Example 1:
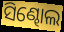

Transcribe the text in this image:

ସିଣ୍ଢୋଲ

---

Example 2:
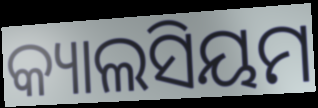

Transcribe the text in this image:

କ୍ୟାଲସିୟମ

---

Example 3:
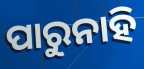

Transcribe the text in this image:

ପାରୁନାହି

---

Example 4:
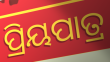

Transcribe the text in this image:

ପ୍ରିୟପାତ୍ର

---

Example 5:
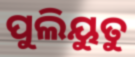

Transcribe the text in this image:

ପୁଲିୟୁତୁ